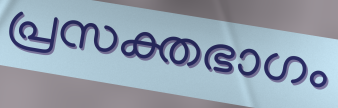
പ്രസക്തഭാഗം